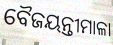
ବୈଜୟନ୍ତୀମାଳା